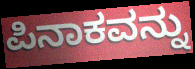
ಪಿನಾಕವನ್ನು